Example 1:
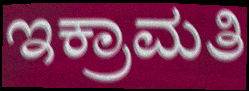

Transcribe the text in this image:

ಇಕ್ರಾಮತಿ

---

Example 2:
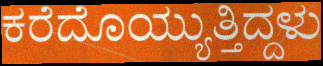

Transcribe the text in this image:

ಕರೆದೊಯ್ಯುತ್ತಿದ್ದಳು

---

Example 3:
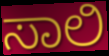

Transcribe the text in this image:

ಸಾಲಿ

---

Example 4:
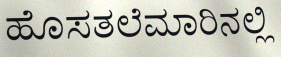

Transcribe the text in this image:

ಹೊಸತಲೆಮಾರಿನಲ್ಲಿ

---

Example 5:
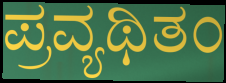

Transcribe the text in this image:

ಪ್ರವ್ಯಥಿತಂ